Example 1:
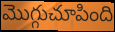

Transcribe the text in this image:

మొగ్గుచూపింది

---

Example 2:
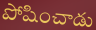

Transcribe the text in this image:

పోషించాడు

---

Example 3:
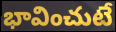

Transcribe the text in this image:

భావించుటే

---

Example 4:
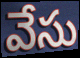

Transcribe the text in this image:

వేసు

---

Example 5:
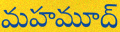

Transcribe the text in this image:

మహమూద్